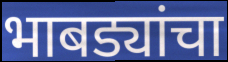
भाबड्यांचा